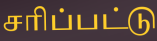
சரிப்பட்டு